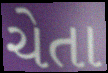
ચેતા